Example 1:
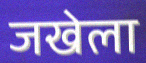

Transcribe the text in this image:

जखेला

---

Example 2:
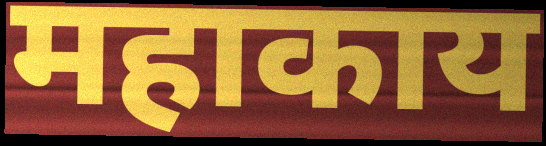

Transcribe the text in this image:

महाकाय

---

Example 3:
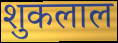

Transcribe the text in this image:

शुकलाल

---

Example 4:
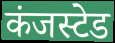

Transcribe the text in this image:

कंजस्टेड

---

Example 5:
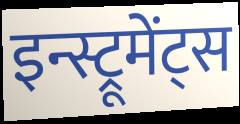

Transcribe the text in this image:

इन्स्ट्रूमेंट्स